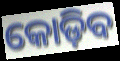
କୋଡ଼ିବ